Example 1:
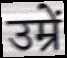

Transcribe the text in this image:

उम्रें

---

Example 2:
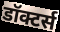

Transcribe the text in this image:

डॉक्टर्स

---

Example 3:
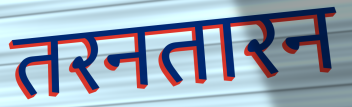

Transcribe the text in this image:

तरनतारन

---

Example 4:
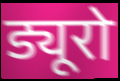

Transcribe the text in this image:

ड्यूरो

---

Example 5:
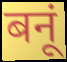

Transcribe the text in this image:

बनूं